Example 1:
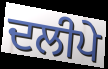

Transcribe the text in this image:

ਦਲੀਪੇ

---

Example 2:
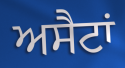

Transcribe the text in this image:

ਅਸੈਟਾਂ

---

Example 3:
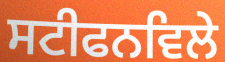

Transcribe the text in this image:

ਸਟੀਫਨਵਿਲੇ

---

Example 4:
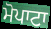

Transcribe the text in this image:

ਮੋਪਾਟਾ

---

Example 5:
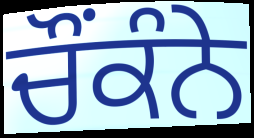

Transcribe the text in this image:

ਚੌਂਕੰਨੇ